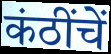
कंठींचें